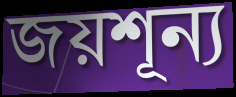
জয়শূন্য